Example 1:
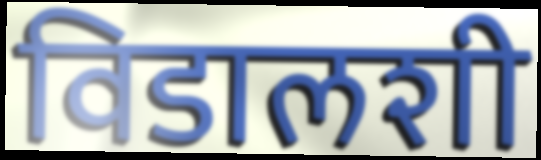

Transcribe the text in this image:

विडालशी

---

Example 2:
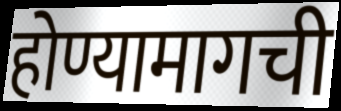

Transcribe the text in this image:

होण्यामागची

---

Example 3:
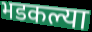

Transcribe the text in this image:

भडकल्या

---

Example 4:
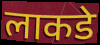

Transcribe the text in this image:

लाकडे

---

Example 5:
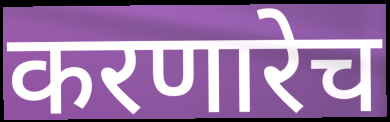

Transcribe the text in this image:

करणारेच